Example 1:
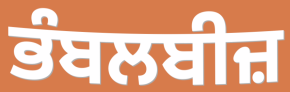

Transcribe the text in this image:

ਭੰਬਲਬੀਜ਼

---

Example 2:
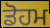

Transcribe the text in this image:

ਡੋਹਮ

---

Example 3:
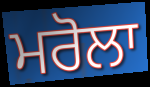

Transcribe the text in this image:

ਮਰੋਲਾ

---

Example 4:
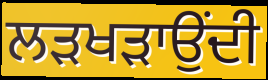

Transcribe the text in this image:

ਲੜਖੜਾਉਂਦੀ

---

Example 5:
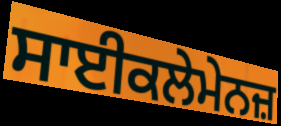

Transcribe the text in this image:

ਸਾਈਕਲੇਮੇਨਜ਼